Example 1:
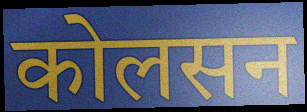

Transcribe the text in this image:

कोलसन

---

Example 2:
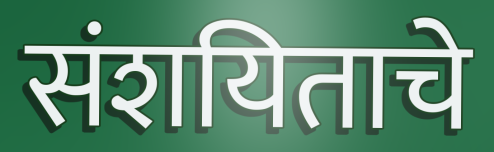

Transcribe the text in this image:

संशयिताचे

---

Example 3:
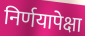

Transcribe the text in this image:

निर्णयापेक्षा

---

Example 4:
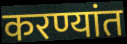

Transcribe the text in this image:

करण्यांत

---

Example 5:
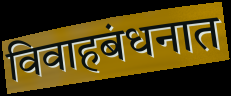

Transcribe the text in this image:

विवाहबंधनात